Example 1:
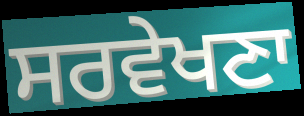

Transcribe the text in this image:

ਸਰਵੇਖਣਾ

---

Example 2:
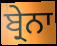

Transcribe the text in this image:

ਬ੍ਰੇਨਾ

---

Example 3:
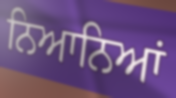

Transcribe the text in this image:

ਨਿਆਨਿਆਂ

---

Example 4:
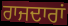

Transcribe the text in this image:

ਰਾਜਦਾਰਾਂ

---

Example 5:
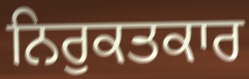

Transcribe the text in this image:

ਨਿਰੁਕਤਕਾਰ